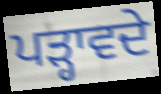
ਪੜ੍ਹਾਵਦੇ